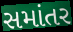
સમાંતર